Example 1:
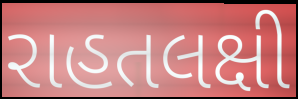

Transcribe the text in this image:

રાહતલક્ષી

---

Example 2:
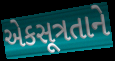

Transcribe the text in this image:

એકસૂત્રતાને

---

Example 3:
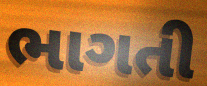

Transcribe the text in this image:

ભાગતી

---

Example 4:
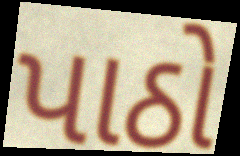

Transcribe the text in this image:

પાઠો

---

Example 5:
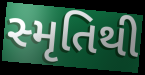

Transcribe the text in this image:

સ્મૃતિથી